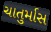
ચાતુર્માસ